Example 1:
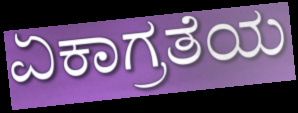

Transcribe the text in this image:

ಏಕಾಗ್ರತೆಯ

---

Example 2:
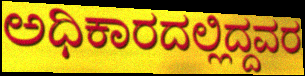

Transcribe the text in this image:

ಅಧಿಕಾರದಲ್ಲಿದ್ದವರ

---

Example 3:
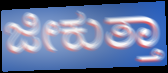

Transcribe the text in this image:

ಜೀಕುತ್ತಾ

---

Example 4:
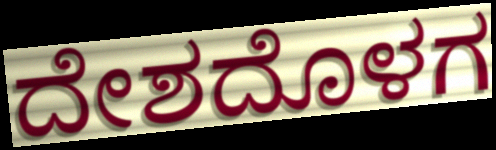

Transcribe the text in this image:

ದೇಶದೊಳಗ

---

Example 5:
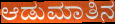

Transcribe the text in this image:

ಆಡುಮಾತಿನ